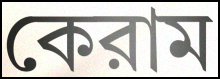
কেরাম